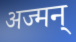
अज्मन्